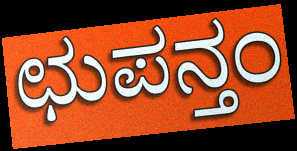
ಛುಪನ್ತಂ